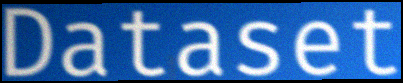
Dataset